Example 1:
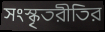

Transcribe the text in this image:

সংস্কৃতরীতির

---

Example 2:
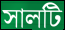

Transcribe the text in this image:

সালটি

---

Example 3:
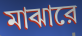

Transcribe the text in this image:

মাঝারে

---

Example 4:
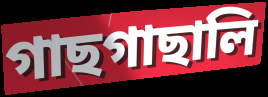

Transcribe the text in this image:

গাছগাছালি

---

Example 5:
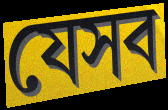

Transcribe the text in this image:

যেসব